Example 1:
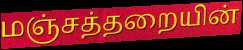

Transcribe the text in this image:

மஞ்சத்தறையின்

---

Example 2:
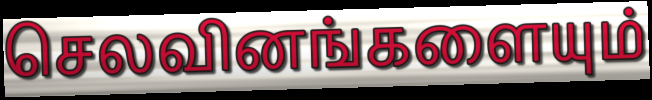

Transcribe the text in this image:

செலவினங்களையும்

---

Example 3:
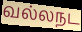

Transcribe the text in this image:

வல்லநட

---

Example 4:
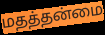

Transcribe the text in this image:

மதத்தன்மை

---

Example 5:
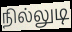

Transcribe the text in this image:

நில்லுடி